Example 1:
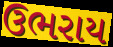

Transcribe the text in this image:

ઉભરાય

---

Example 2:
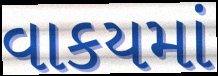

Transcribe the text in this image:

વાકયમાં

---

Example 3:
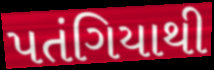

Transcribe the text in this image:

પતંગિયાથી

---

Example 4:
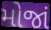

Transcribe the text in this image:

મોજાં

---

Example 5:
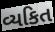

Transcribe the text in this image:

વ્યકિત